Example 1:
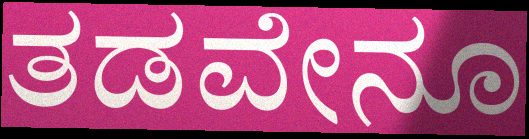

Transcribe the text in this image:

ತಡವೇನೂ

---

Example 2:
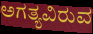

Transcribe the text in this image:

ಅಗತ್ಯವಿರುವ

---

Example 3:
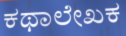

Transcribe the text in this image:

ಕಥಾಲೇಖಕ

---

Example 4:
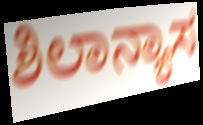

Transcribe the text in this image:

ಶಿಲಾನ್ಯಾಸ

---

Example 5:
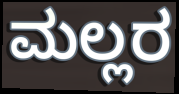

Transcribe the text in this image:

ಮಲ್ಲರ